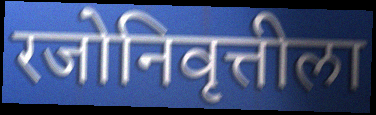
रजोनिवृत्तीला